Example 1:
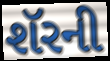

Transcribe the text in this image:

શૅરની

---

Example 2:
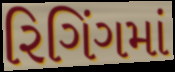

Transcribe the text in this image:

રિગિંગમાં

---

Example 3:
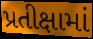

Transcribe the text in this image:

પ્રતીક્ષામાં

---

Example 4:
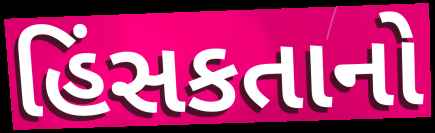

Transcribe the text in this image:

હિંસકતાનો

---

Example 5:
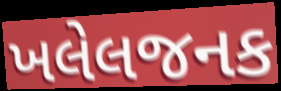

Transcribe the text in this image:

ખલેલજનક